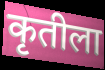
कृतीला